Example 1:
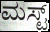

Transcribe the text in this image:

ಮಸ್ಟ್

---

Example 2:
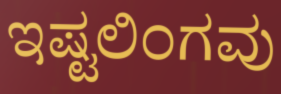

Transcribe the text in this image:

ಇಷ್ಟಲಿಂಗವು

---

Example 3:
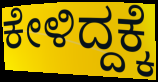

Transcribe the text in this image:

ಕೇಳಿದ್ದಕ್ಕೆ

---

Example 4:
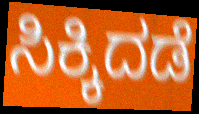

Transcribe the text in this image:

ಸಿಕ್ಕಿದಡೆ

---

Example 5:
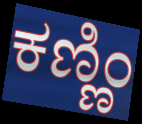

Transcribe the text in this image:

ಕಣ್ಣಿಂ